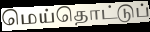
மெய்தொட்டுப்